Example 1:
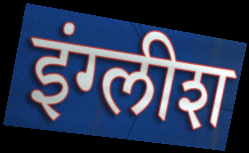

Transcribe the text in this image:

इंग्लीश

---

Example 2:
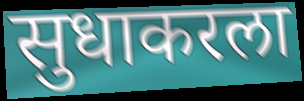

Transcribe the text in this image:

सुधाकरला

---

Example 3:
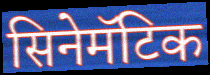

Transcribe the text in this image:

सिनेमॅटिक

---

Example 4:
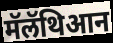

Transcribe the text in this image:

मॅलॅथिआन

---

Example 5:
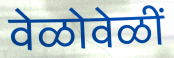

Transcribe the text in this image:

वेळोवेळीं